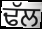
ਢੱਲ